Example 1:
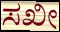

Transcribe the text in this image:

ಸಖೀ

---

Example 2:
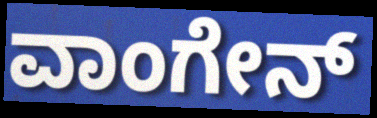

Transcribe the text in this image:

ವಾಂಗೇನ್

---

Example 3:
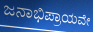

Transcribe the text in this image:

ಜನಾಭಿಪ್ರಾಯವೇ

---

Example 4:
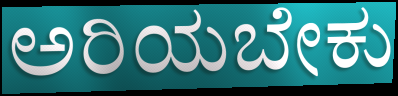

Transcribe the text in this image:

ಅರಿಯಬೇಕು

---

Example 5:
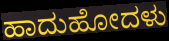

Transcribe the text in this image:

ಹಾದುಹೋದಳು